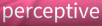
perceptive